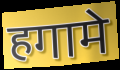
हगामे